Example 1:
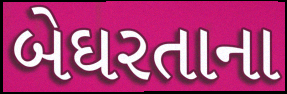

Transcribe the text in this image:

બેઘરતાના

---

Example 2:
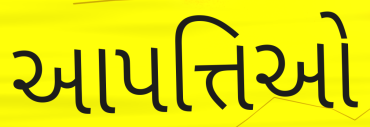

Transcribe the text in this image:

આપત્તિઓ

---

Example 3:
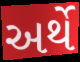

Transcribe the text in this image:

અર્થે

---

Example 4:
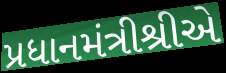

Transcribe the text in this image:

પ્રધાનમંત્રીશ્રીએ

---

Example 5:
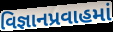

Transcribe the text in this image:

વિજ્ઞાનપ્રવાહમાં